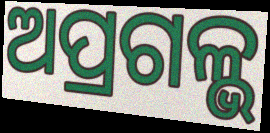
ଅପ୍ରଗଳ୍ଭ